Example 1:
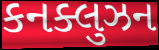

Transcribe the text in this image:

કનક્લુઝન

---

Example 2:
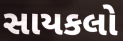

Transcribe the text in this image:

સાયકલો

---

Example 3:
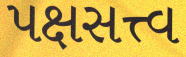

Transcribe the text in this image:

પક્ષસત્ત્વ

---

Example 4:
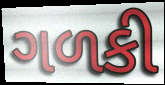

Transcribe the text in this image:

ગળકી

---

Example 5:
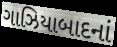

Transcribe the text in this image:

ગાઝિયાબાદનાં